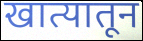
खात्यातून